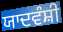
ਯਾਦਵੰਸ਼ੀ